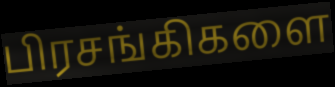
பிரசங்கிகளை